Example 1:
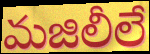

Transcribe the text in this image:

మజిలీలే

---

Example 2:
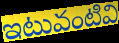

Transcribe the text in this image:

ఇటువంటివి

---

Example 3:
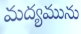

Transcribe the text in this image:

మద్యమును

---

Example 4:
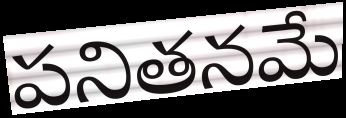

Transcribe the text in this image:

పనితనమే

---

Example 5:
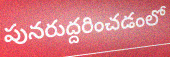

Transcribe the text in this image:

పునరుద్దరించడంలో